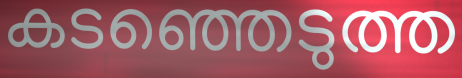
കടഞ്ഞെടുത്ത